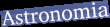
Astronomia